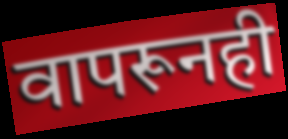
वापरूनही